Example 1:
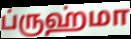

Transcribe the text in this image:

ப்ருஹ்மா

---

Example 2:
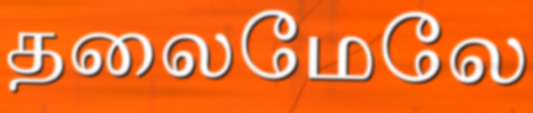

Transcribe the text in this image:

தலைமேலே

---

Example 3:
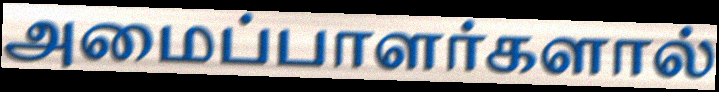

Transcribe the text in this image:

அமைப்பாளர்களால்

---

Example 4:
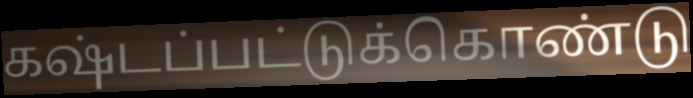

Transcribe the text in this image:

கஷ்டப்பட்டுக்கொண்டு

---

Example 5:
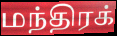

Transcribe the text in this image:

மந்திரக்